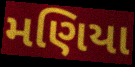
મણિયા